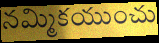
నమ్మికయుంచు